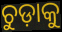
ଚୁଡ଼ାକୁ